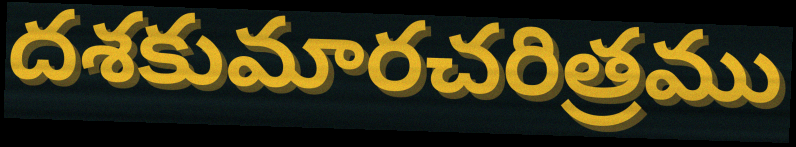
దశకుమారచరిత్రము